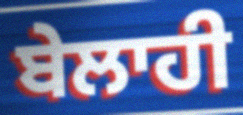
ਬੇਲਾਹੀ